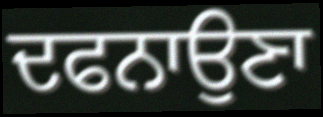
ਦਫਨਾਉਣਾ